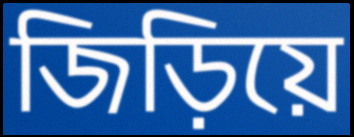
জিড়িয়ে